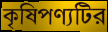
কৃষিপণ্যটির